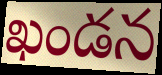
ఖండన